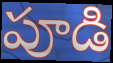
పూడి